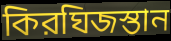
কিরঘিজস্তান